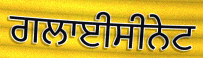
ਗਲਾਈਸੀਨੇਟ